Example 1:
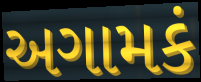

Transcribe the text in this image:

અગામકં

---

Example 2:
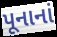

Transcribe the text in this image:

પૂનાનાં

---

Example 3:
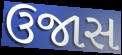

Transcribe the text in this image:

ઉજાસ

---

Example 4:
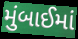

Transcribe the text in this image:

મુંબાઈમાં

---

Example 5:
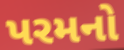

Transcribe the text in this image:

પરમનો